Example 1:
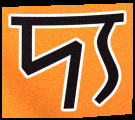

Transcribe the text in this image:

দ্য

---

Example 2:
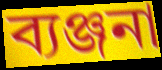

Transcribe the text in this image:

ব্যঞ্জনা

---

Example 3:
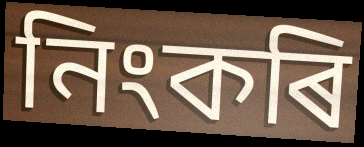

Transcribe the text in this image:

নিংকৰি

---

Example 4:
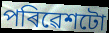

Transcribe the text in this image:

পৰিৱেশটো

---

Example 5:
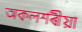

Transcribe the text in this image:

অকলশৰীয়া